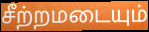
சீற்றமடையும்